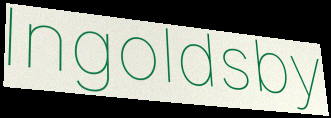
Ingoldsby